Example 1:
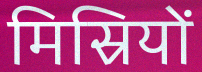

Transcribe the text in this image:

मिस्रियों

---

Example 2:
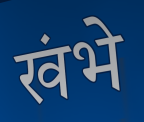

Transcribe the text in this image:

खंभे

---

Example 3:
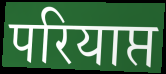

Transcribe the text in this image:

परियाप्त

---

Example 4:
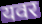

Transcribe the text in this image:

यवर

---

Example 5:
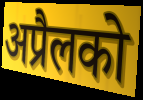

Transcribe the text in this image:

अप्रैलको